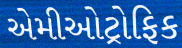
એમીઓટ્રોફિક